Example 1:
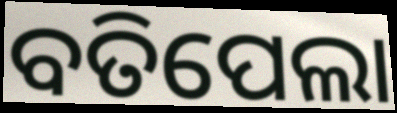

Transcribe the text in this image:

ବତିପେଲା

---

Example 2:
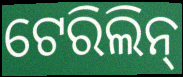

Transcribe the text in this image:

ଟେରିଲିନ୍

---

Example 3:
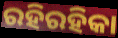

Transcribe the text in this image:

ରହିରହିକା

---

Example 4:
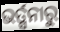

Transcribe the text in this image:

ଭର୍ତ୍ସନାରୁ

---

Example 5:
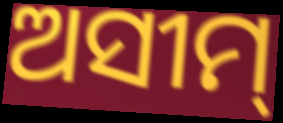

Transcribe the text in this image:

ଅସୀମ୍